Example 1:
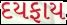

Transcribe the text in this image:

દયફાય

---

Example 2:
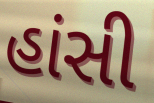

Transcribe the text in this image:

હાંસી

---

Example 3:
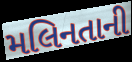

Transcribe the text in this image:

મલિનતાની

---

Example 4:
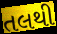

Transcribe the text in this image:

તલથી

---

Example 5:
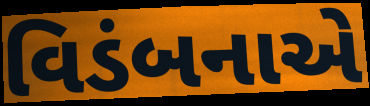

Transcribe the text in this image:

વિડંબનાએ